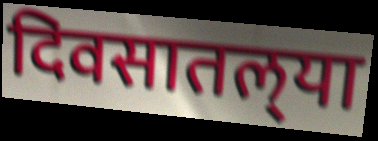
दिवसातल्या